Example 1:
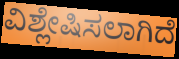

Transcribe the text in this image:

ವಿಶ್ಲೇಷಿಸಲಾಗಿದೆ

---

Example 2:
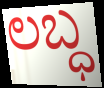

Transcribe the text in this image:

ಲಬ್ಧ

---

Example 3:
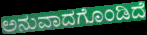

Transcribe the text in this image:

ಅನುವಾದಗೊಂಡಿದೆ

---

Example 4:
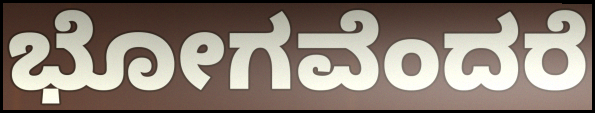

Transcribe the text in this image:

ಭೋಗವೆಂದರೆ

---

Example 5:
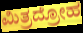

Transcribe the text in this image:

ಮಿತ್ರದ್ರೋಹ